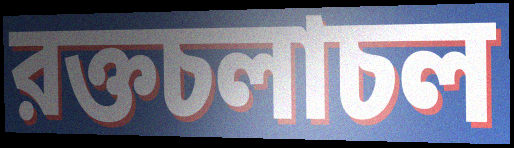
রক্তচলাচল